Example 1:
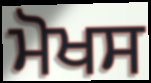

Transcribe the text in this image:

ਮੋਖਸ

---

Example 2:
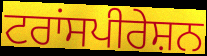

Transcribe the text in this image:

ਟਰਾਂਸਪੀਰੇਸ਼ਨ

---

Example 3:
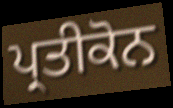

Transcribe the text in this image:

ਪ੍ਰਤੀਕੋਨ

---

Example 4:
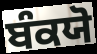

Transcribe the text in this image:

ਬੰਕਯੋ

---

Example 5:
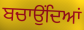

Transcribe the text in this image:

ਬਚਾਉਂਦਿਆਂ